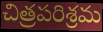
చిత్రపరిశ్రమ